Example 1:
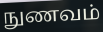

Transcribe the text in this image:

நுணவம்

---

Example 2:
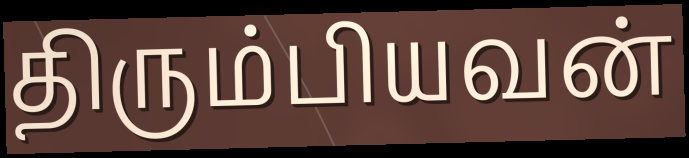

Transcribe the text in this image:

திரும்பியவன்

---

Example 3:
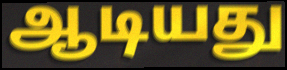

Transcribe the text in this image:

ஆடியது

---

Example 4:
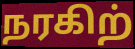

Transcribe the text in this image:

நரகிற்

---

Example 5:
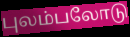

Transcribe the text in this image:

புலம்பலோடு